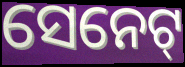
ସେନେଟ୍